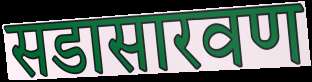
सडासारवण